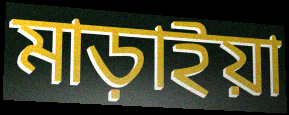
মাড়াইয়া